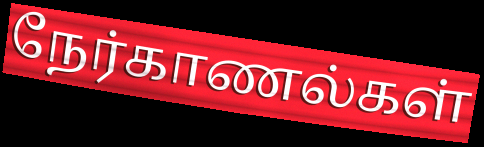
நேர்காணல்கள்